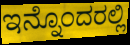
ಇನ್ನೊಂದರಲ್ಲಿ